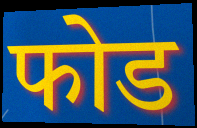
फोड